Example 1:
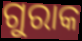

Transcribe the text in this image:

ଗୁରାକ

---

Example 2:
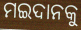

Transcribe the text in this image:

ମଇଦାନକୁ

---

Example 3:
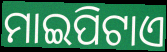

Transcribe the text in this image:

ମାଇପିଟାଏ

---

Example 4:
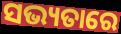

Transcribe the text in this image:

ସଭ୍ୟତାରେ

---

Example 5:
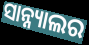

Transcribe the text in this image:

ସାନ୍ନ୍ୟାଲର